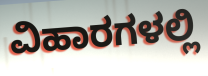
ವಿಹಾರಗಳಲ್ಲಿ